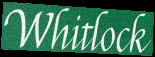
Whitlock